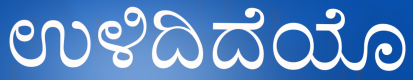
ಉಳಿದಿದೆಯೊ